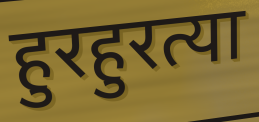
हुरहुरत्या